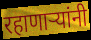
रहाणार्‍यांनी